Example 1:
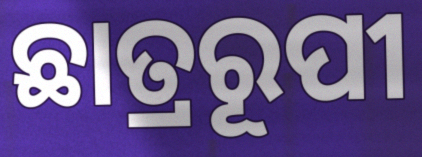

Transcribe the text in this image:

ଛାତ୍ରରୂପୀ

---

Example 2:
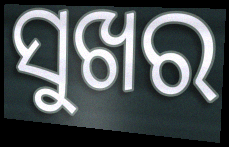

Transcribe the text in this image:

ସୁଖର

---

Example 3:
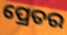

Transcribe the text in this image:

ପ୍ରେତର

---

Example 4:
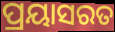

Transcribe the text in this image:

ପ୍ରୟାସରତ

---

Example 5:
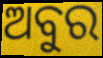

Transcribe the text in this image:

ଅବୁର